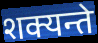
शक्यन्ते